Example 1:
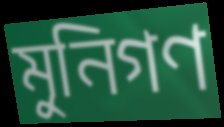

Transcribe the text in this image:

মুনিগণ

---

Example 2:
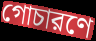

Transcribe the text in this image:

গোচারণে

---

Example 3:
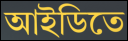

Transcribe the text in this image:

আইডিতে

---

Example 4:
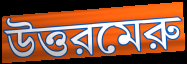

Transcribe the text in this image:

উত্তরমেরু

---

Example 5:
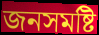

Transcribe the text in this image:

জনসমষ্টি